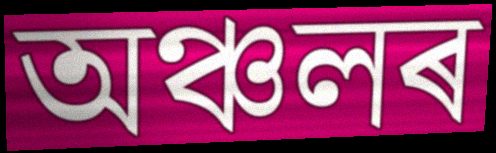
অঞ্চলৰ